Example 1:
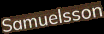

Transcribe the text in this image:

Samuelsson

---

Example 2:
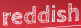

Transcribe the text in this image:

reddish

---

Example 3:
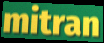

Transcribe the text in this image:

mitran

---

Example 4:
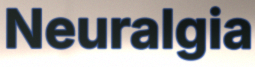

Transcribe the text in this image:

Neuralgia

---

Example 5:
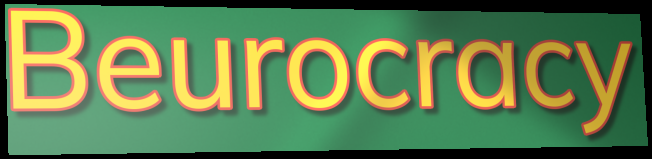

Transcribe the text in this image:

Beurocracy